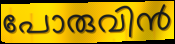
പോരുവിൻ